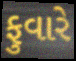
ફુવારે